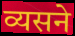
व्यसने